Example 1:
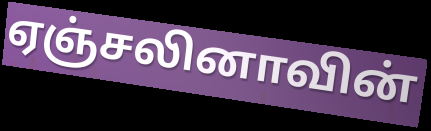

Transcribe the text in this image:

ஏஞ்சலினாவின்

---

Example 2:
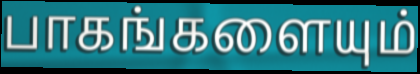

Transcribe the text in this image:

பாகங்களையும்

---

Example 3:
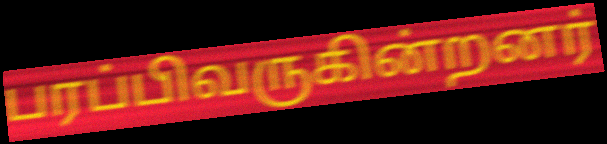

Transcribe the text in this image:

பரப்பிவருகின்றனர்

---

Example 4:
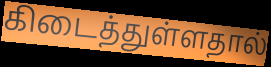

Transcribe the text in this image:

கிடைத்துள்ளதால்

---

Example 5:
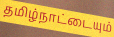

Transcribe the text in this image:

தமிழ்நாட்டையும்